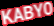
KABYO